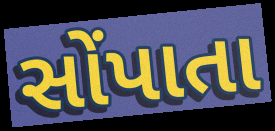
સોંપાતા